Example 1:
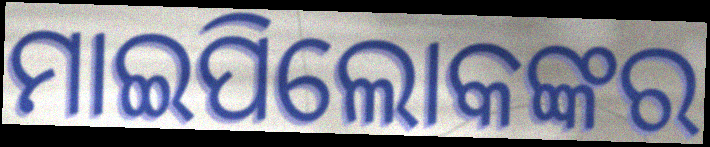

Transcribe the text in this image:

ମାଇପିଲୋକଙ୍କର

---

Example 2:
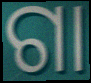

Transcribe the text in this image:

ଗା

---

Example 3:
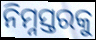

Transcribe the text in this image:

ନିମ୍ନସ୍ତରକୁ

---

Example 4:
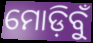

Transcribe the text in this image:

ମୋଡ଼ିବୁଁ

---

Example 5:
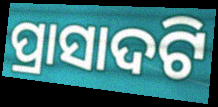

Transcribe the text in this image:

ପ୍ରାସାଦଟି